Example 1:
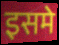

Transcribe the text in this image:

इसमे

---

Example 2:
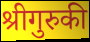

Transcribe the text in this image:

श्रीगुरुकी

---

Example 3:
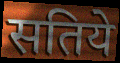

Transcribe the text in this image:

सतिये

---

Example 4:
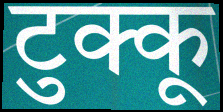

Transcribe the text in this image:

टुक्कू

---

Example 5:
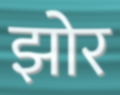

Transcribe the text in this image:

झोर